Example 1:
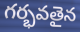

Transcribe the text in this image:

గర్భవతైన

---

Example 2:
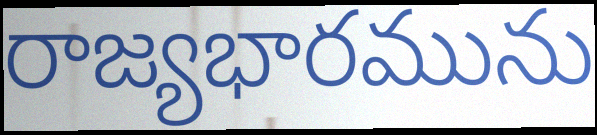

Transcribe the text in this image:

రాజ్యభారమును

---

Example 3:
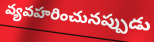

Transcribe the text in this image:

వ్యవహరించునప్పుడు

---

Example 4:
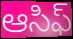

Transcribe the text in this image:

ఆసిఫ్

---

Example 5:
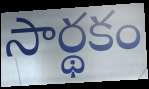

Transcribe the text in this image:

సార్థకం